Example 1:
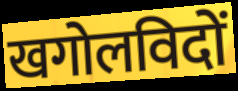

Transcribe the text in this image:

खगोलविदों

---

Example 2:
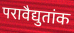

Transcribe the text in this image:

परावैद्युतांक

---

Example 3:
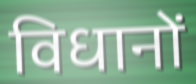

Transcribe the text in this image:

विधानों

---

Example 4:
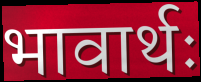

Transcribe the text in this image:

भावार्थः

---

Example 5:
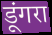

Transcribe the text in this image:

डूंगरा